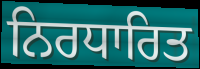
ਨਿਰਧਾਰਿਤ